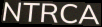
NTRCA